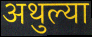
अथुल्या